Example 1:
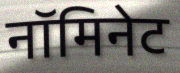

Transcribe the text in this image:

नॉमिनेट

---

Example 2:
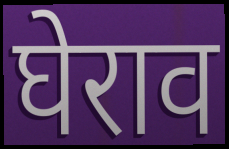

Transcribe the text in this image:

घेराव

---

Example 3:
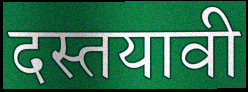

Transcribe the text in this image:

दस्तयावी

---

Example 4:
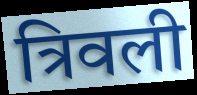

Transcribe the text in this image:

त्रिवली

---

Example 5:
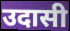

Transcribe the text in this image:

उदासी